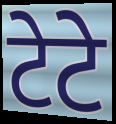
टेटे